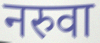
नरुवा